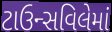
ટાઉન્સવિલેમાં